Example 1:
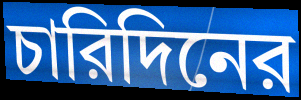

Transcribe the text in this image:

চারিদিনের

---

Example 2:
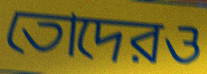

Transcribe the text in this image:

তোদেরও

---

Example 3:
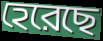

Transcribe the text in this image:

হেরেছে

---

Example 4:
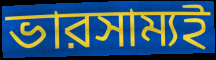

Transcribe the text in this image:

ভারসাম্যই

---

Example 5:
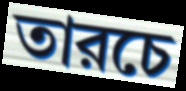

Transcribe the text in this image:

তারচে